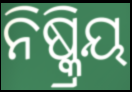
ନିଷ୍କ୍ରିୟ